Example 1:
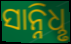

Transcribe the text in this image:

ସାନ୍ନିଧୢ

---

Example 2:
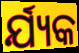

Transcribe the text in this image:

ର୍ଯ୍ୟକ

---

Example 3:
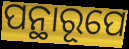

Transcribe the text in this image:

ପନ୍ଥାରୂପେ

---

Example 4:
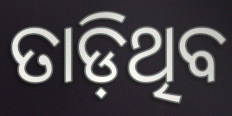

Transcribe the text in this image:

ତାଡ଼ିଥିବ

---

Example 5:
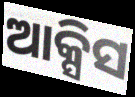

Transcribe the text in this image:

ଆକ୍ସିସ